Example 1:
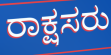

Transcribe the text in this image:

ರಾಕ್ಷಸರು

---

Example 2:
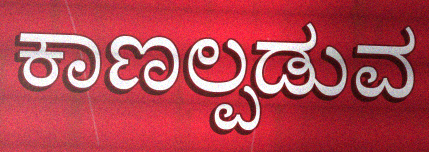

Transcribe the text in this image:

ಕಾಣಲ್ಪಡುವ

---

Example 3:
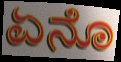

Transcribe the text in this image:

ಏನೊ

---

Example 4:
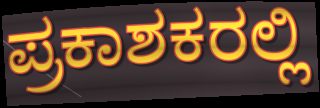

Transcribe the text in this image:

ಪ್ರಕಾಶಕರಲ್ಲಿ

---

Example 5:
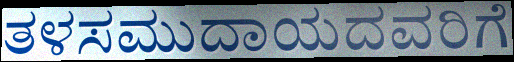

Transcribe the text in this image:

ತಳಸಮುದಾಯದವರಿಗೆ